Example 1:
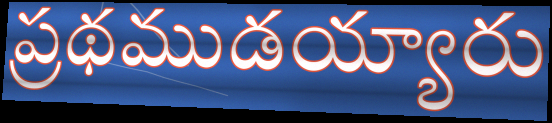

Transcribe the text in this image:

ప్రథముడయ్యారు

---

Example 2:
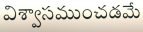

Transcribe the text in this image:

విశ్వాసముంచడమే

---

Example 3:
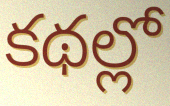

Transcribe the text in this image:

కథల్లో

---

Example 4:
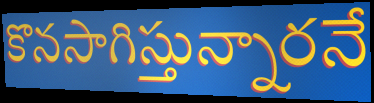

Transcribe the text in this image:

కొనసాగిస్తున్నారనే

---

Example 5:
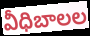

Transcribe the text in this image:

వీధిబాలల